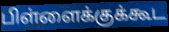
பிள்ளைக்குக்கூட